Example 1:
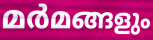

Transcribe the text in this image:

മർമങ്ങളും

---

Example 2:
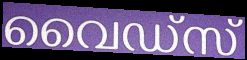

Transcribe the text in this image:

വൈഡ്സ്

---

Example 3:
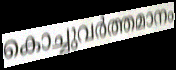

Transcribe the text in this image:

കൊച്ചുവർത്തമാനം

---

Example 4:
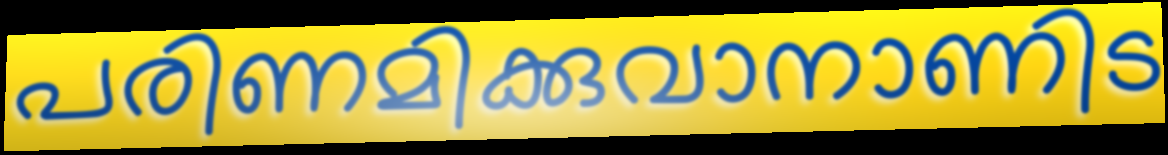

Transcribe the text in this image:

പരിണമിക്കുവാനാണിട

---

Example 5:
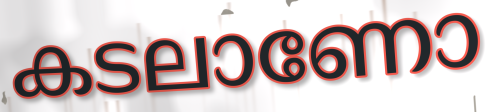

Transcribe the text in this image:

കടലാണോ